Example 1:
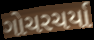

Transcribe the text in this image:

ગોચરચર્યા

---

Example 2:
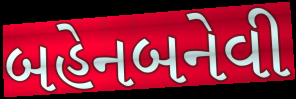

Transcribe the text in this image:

બહેનબનેવી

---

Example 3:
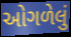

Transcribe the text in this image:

ઓગળેલું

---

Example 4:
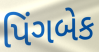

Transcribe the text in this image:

પિંગબેક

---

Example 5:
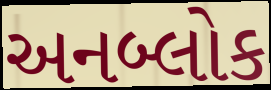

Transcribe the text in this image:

અનબ્લોક